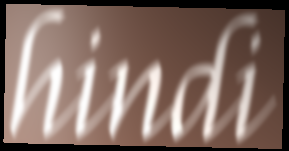
hindi